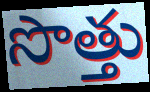
సొత్తు